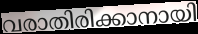
വരാതിരിക്കാനായി